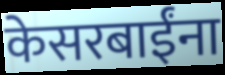
केसरबाईंना